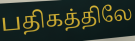
பதிகத்திலே